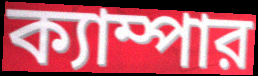
ক্যাম্পার